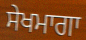
ਸੇਖਮਾਗਾ